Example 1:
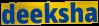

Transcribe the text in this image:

deeksha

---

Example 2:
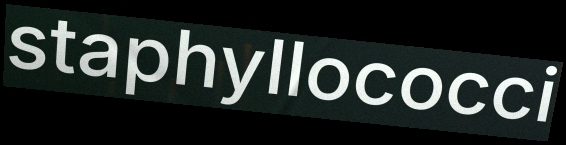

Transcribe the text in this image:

staphyllococci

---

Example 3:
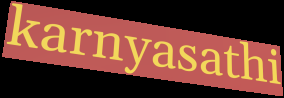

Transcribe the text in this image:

karnyasathi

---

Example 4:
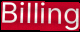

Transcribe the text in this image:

Billing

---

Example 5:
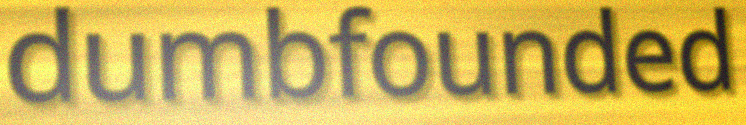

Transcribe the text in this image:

dumbfounded